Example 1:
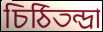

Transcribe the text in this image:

চিঠিতন্দ্রা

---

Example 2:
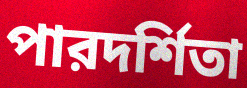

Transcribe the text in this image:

পারদর্শিতা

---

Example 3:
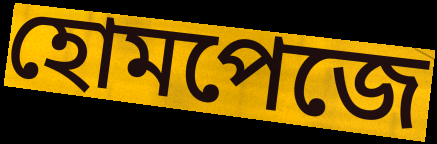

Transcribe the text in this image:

হোমপেজে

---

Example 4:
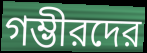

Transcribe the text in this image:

গম্ভীরদের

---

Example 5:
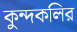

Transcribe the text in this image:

কুন্দকলির